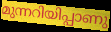
മുന്നറിയിപ്പാണു